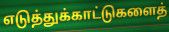
எடுத்துக்காட்டுகளைத்